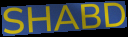
SHABD